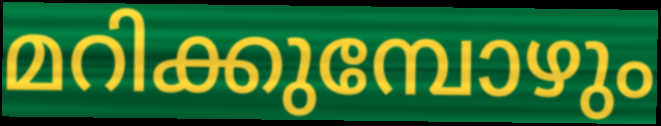
മറിക്കുമ്പോഴും